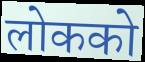
लोकको